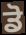
ਡੋ